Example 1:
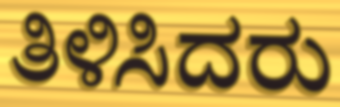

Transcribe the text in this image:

ತಿಳಿಸಿದರು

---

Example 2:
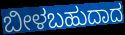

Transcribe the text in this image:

ಬೀಳಬಹುದಾದ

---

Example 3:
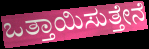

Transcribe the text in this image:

ಒತ್ತಾಯಿಸುತ್ತೇನೆ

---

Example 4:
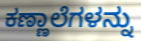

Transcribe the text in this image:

ಕಣ್ಣಾಲೆಗಳನ್ನು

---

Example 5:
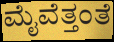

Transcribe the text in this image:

ಮೈವೆತ್ತಂತೆ